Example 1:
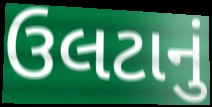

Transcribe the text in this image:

ઉલટાનું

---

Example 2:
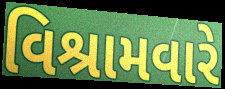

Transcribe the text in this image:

વિશ્રામવારે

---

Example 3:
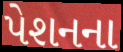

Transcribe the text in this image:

પેશનના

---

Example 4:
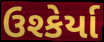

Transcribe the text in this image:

ઉશ્કેર્યા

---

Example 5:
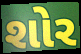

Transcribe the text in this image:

શોર